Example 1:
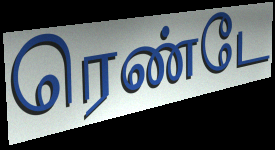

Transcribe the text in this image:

ரெண்டே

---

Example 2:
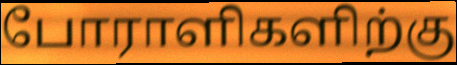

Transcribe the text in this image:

போராளிகளிற்கு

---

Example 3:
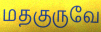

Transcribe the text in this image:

மதகுருவே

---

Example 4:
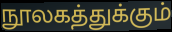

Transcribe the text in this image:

நூலகத்துக்கும்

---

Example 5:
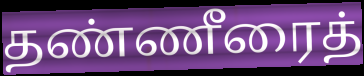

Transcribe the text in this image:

தண்ணீரைத்